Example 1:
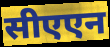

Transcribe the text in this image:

सीएएन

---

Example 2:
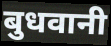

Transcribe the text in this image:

बुधवानी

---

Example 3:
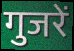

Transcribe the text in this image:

गुजरें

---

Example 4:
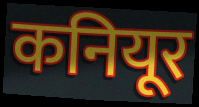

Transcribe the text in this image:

कनियूर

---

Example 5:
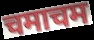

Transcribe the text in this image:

चमाचम